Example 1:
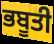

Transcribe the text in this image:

ਭਬੂਤੀ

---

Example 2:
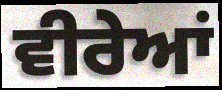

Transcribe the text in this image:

ਵੀਰੇਆਂ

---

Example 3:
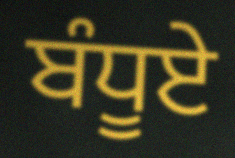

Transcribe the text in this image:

ਬੰਧੂਏ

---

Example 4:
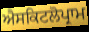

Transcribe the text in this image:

ਐਸਕਿਟਲੋਪ੍ਰਾਮ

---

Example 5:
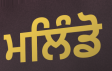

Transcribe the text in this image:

ਮਲਿੰਡੋ